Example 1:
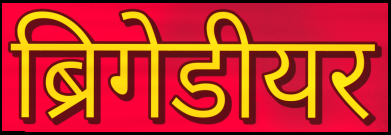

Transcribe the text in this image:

ब्रिगेडीयर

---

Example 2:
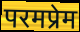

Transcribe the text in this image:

परमप्रेम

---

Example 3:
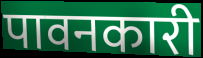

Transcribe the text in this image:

पावनकारी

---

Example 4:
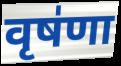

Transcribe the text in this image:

वृष॑णा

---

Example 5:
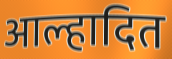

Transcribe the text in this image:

आल्हादित